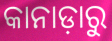
କାନାଡ଼ାରୁ